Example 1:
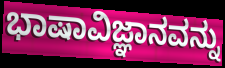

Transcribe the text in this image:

ಭಾಷಾವಿಜ್ಞಾನವನ್ನು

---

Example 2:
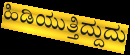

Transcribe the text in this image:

ಹಿಡಿಯುತ್ತಿದ್ದುದು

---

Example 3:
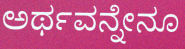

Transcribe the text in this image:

ಅರ್ಥವನ್ನೇನೂ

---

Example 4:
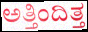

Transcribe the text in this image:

ಅತ್ತಿಂದಿತ್ತ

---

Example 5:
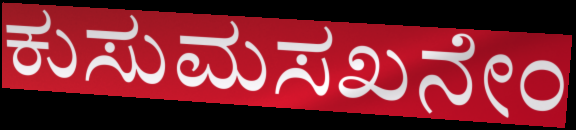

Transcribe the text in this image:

ಕುಸುಮಸಖನೇಂ